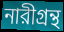
নারীগ্রন্থ